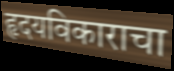
हृदयविकाराचा